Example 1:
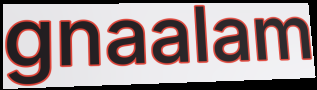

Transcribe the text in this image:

gnaalam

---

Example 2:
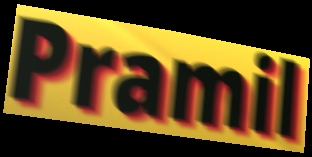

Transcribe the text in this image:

Pramil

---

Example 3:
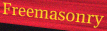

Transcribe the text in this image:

Freemasonry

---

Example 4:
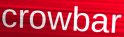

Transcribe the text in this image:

crowbar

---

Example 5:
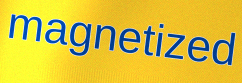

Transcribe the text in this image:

magnetized